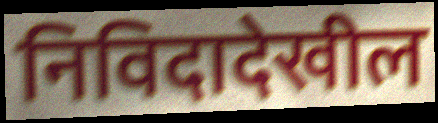
निविदादेखील